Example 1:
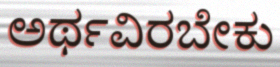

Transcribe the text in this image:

ಅರ್ಥವಿರಬೇಕು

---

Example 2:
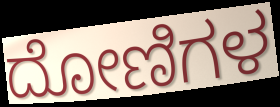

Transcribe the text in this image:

ದೋಣಿಗಳ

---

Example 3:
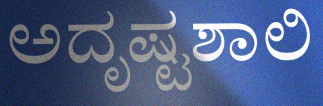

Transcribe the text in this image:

ಅದೃಷ್ಟಶಾಲಿ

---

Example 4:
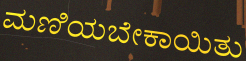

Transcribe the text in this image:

ಮಣಿಯಬೇಕಾಯಿತು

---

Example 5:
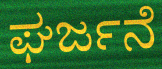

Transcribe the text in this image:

ಘರ್ಜನೆ